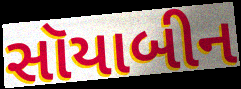
સૉયાબીન